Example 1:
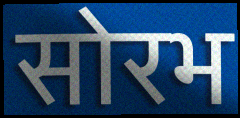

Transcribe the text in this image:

सोरभ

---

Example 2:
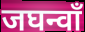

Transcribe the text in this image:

जघन्वाँ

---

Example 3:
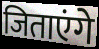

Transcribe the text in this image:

जिताएंगे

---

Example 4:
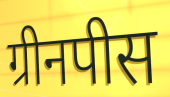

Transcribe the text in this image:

ग्रीनपीस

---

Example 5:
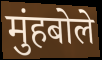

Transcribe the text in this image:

मुंहबोले